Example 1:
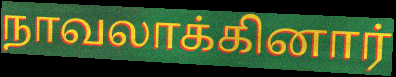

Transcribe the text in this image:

நாவலாக்கினார்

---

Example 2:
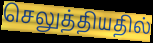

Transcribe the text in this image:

செலுத்தியதில்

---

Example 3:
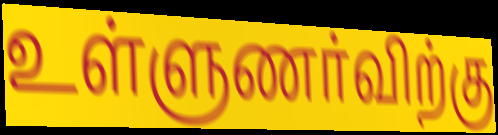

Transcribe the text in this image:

உள்ளுணர்விற்கு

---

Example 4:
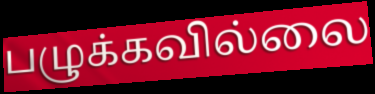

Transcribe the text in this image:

பழுக்கவில்லை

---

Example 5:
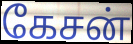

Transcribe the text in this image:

கேசன்